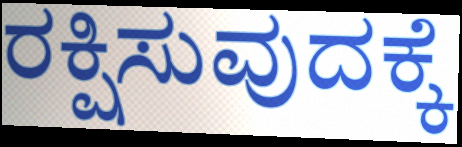
ರಕ್ಷಿಸುವುದಕ್ಕೆ